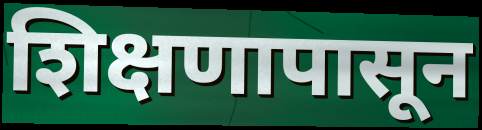
शिक्षणापासून